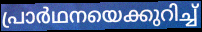
പ്രാർഥനയെക്കുറിച്ച്